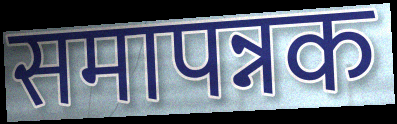
समापन्नक